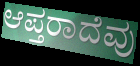
ಆಪ್ತರಾದೆವು